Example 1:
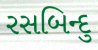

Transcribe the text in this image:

રસબિન્દુ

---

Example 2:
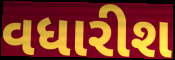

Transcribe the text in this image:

વધારીશ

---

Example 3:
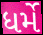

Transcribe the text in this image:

ધર્મે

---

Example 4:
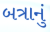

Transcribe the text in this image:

બત્રાનું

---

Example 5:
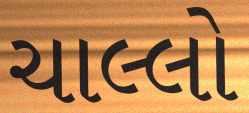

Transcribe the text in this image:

ચાલ્લો